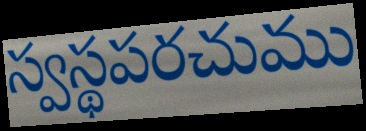
స్వస్థపరచుము